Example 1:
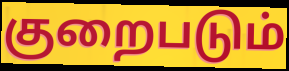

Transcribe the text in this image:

குறைபடும்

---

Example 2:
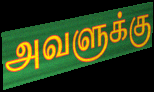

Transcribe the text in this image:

அவளுக்கு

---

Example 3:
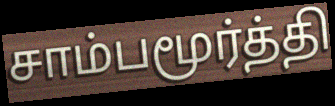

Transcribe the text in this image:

சாம்பமூர்த்தி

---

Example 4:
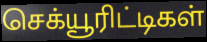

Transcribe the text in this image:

செக்யூரிட்டிகள்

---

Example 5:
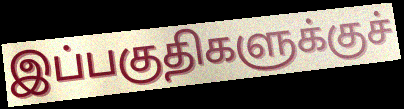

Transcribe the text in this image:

இப்பகுதிகளுக்குச்